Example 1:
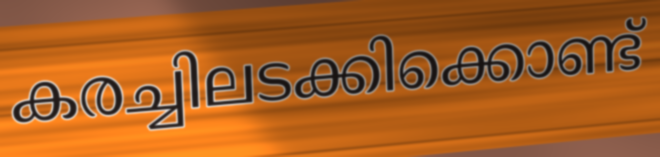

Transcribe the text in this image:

കരച്ചിലടക്കിക്കൊണ്ട്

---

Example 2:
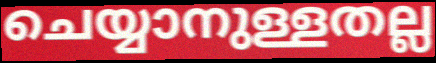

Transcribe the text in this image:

ചെയ്യാനുള്ളതല്ല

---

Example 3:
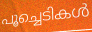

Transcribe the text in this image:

പൂച്ചെടികൾ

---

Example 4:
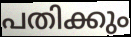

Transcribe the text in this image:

പതിക്കും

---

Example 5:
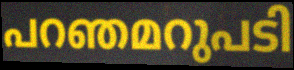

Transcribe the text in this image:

പറഞമറുപടി